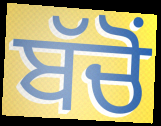
ਬੱਚੋਂ